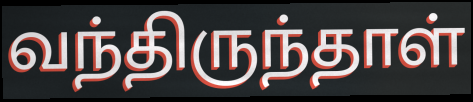
வந்திருந்தாள்